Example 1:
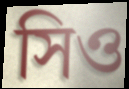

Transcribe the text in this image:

সিও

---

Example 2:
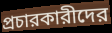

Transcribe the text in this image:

প্রচারকারীদের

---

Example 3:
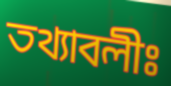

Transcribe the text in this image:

তথ্যাবলীঃ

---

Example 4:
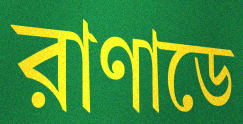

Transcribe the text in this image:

রাণাডে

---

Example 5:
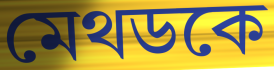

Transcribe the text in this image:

মেথডকে